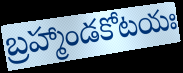
బ్రహ్మాండకోటయః